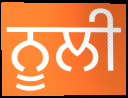
ਨੂਲੀ